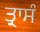
ਤ੍ਰਾਸੰ